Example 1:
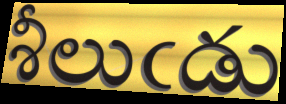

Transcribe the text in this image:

శీలుఁడు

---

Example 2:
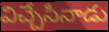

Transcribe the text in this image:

విచ్చేసినాడు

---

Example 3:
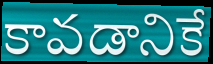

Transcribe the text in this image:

కావడానికే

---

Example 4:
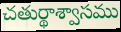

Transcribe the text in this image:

చతుర్థాశ్వాసము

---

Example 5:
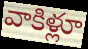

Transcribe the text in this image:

వాకిళ్లూ